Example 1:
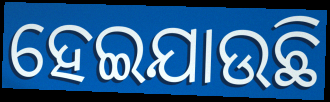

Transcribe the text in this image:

ହେଇଯାଉଛି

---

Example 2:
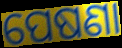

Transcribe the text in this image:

ପେଷଣା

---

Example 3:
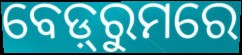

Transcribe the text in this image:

ବେଡ଼୍‌ରୁମରେ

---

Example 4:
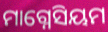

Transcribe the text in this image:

ମାଗ୍ନେସିୟମ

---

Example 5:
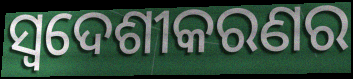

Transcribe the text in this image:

ସ୍ୱଦେଶୀକରଣର